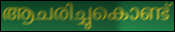
ആചരിച്ചുകൊണ്ട്